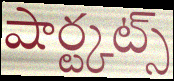
షార్ట్కట్స్